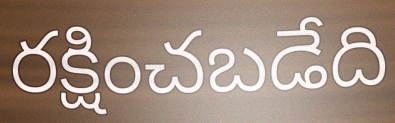
రక్షించబడేది